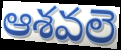
ఆశవలె